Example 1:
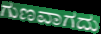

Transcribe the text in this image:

ಗುಣವಾಗದು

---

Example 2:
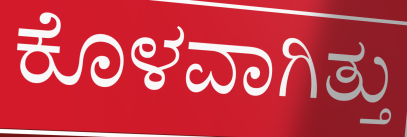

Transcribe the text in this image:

ಕೊಳವಾಗಿತ್ತು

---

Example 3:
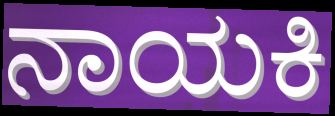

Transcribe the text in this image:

ನಾಯಕಿ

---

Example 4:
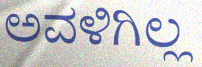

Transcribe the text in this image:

ಅವಳಿಗಿಲ್ಲ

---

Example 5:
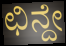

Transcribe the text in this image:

ಛಿನ್ದೇ